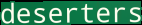
deserters